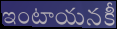
ఇంటాయనకీ